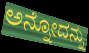
ಅನ್ನೋದನ್ನು